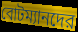
বোটম্যানদের